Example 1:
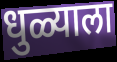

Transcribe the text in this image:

धुळ्याला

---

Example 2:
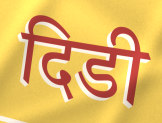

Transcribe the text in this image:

दिडी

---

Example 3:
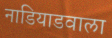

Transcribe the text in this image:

नाडियाडवाला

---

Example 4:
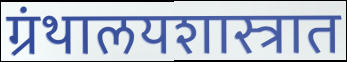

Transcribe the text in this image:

ग्रंथालयशास्त्रात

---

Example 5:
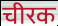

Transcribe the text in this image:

चीरक